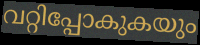
വറ്റിപ്പോകുകയും